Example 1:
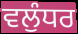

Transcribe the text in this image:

ਵਲੁੰਧਰ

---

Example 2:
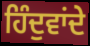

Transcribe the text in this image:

ਹਿੰਦੁਵਾਂਦੇ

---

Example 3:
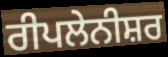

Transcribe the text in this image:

ਰੀਪਲੇਨੀਸ਼ਰ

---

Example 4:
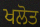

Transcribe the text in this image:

ਖਲੋਤ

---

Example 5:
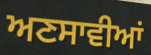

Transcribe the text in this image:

ਅਣਸਾਵੀਆਂ